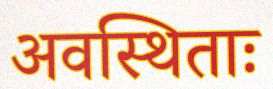
अवस्थिताः